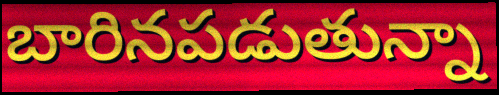
బారినపడుతున్నా